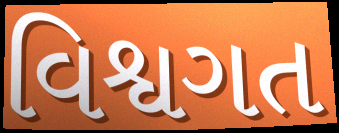
વિશ્વગત